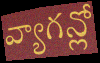
వ్యాగన్లో